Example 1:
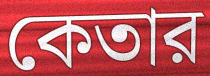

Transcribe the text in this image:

কেতার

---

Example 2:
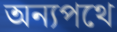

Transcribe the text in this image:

অন্যপথে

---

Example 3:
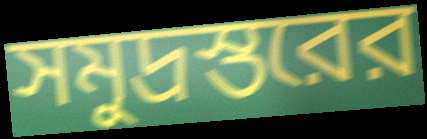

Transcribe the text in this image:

সমুদ্রস্তরের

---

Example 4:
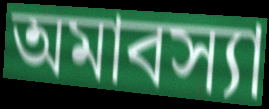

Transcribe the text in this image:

অমাবস্যা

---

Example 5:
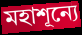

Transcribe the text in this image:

মহাশূন্যে